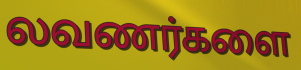
லவணர்களை